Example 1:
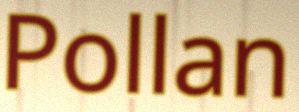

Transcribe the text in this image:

Pollan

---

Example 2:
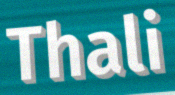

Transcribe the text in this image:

Thali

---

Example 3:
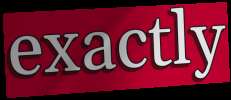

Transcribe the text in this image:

exactly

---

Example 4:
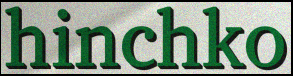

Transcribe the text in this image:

hinchko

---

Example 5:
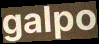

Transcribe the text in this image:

galpo